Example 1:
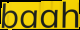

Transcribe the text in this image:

baah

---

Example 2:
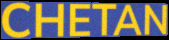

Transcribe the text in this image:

CHETAN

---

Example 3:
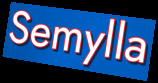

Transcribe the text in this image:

Semylla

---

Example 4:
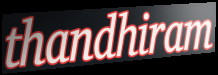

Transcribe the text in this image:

thandhiram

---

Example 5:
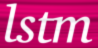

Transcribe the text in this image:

lstm